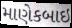
માણેકબાઇ